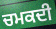
ਚਮਕਦੀ